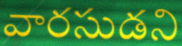
వారసుడని